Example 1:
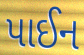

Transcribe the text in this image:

પાઈન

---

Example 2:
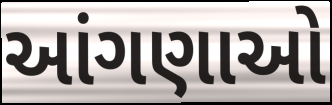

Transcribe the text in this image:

આંગણાઓ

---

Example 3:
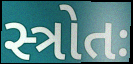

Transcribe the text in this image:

સ્ત્રોતઃ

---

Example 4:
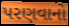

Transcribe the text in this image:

પરણવાનો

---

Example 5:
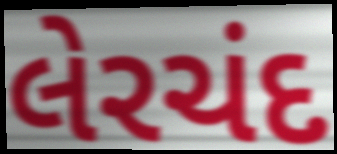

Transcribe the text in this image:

લેરચંદ